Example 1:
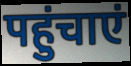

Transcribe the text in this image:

पहुंचाएं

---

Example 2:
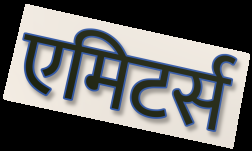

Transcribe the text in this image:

एमिटर्स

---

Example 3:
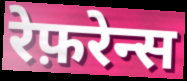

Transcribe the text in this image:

रेफ़रेन्स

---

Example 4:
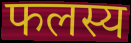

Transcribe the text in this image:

फलस्य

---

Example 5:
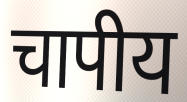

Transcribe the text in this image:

चापीय